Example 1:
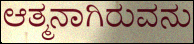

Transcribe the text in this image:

ಆತ್ಮನಾಗಿರುವನು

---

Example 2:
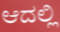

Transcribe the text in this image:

ಆದಲ್ಲಿ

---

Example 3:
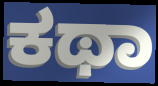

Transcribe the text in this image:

ಕಥಾ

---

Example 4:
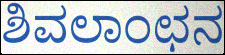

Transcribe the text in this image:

ಶಿವಲಾಂಛನ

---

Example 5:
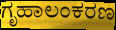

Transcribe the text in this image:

ಗೃಹಾಲಂಕರಣ